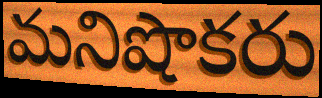
మనిషొకరు